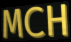
MCH